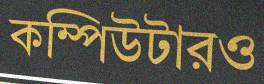
কম্পিউটারও